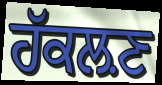
ਹੱਕਲ਼ਣ